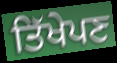
ਤਿੱਖੇਪਣ